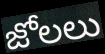
జోలలు